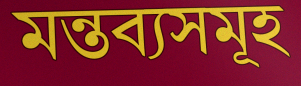
মন্তব্যসমূহ